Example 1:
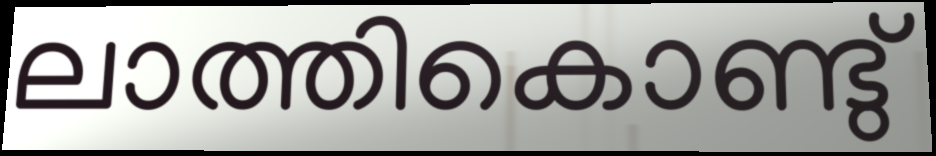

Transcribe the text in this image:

ലാത്തികൊണ്ടു്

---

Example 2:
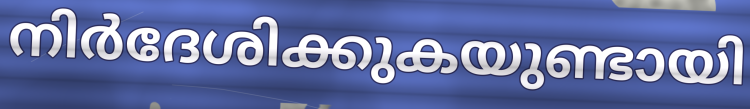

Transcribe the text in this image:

നിർദേശിക്കുകയുണ്ടായി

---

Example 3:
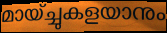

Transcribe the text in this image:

മായ്ച്ചുകളയാനും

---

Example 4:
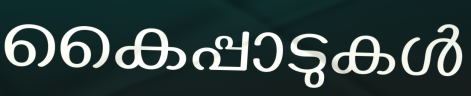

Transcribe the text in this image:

കൈപ്പാടുകൾ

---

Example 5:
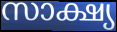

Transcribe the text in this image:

സാക്ഷ്യ